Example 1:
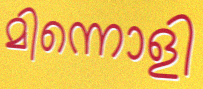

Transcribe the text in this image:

മിന്നൊളി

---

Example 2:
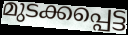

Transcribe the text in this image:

മുടക്കപ്പെട്ട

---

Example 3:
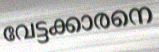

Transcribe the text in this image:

വേട്ടക്കാരനെ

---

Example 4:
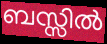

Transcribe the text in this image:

ബസ്സിൽ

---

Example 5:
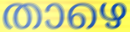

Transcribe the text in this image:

താഴെ